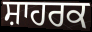
ਸ਼ਾਹਰਕ